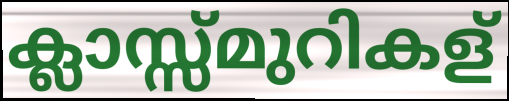
ക്ലാസ്സ്മുറികള്